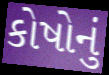
કોષોનું